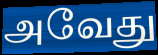
அவேது